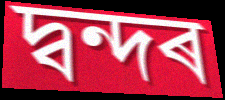
দ্বন্দৰ